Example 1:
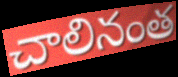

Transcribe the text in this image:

చాలినంత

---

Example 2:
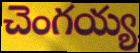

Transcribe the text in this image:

చెంగయ్య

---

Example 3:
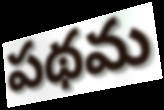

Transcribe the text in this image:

పథమ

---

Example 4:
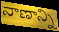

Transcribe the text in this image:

నాణాన్ని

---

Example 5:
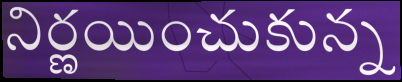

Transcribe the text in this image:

నిర్ణయించుకున్న